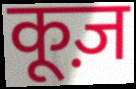
कूज़